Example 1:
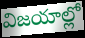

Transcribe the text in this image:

విజయాల్లో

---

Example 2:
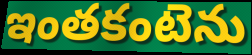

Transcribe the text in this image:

ఇంతకంటెను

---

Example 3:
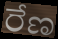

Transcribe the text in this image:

రేణ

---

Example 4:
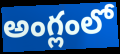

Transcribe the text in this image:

అంగ్లంలో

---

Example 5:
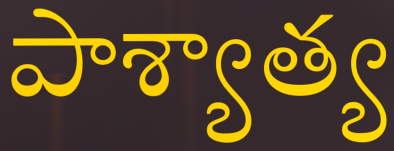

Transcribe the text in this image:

పాశ్యాత్య